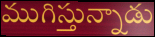
ముగిస్తున్నాడు